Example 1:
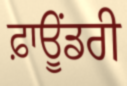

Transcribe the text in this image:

ਫ਼ਾਊਂਡਰੀ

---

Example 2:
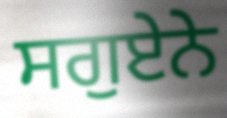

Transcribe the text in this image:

ਸਗੁਏਨੇ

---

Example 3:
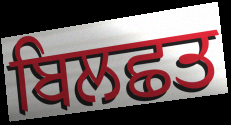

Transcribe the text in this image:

ਬਿਲਛਤ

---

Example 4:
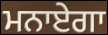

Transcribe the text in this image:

ਮਨਾਏਗਾ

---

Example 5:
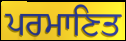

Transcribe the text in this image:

ਪਰਮਾਣਿਤ